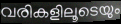
വരികളിലൂടെയും